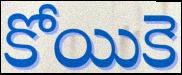
కోయికె